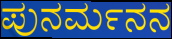
ಪುನರ್ಮನನ